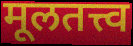
मूलतत्त्व